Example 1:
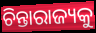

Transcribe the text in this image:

ଚିନ୍ତାରାଜ୍ୟକୁ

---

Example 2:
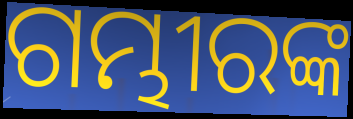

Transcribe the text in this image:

ଗମ୍ଭୀରଙ୍କ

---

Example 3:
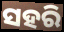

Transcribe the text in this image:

ସହରି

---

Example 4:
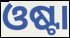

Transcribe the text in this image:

ଓଷ୍ଟା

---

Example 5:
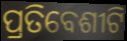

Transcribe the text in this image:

ପ୍ରତିବେଶୀଟି